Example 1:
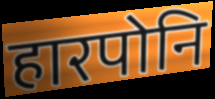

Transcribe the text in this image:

हारपोनि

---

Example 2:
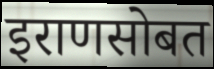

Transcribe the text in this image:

इराणसोबत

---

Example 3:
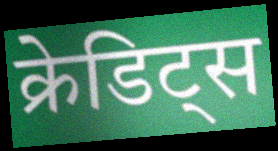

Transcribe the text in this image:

क्रेडिट्स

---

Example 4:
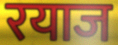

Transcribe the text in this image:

रयाज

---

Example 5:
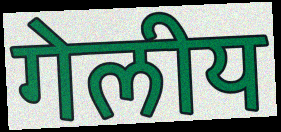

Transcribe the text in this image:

गेलीय